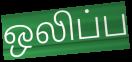
ஒலிப்ப